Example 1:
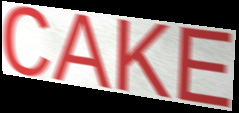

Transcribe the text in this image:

CAKE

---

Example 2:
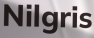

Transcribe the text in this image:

Nilgris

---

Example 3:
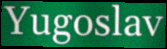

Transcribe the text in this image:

Yugoslav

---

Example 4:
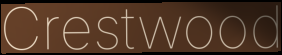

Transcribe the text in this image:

Crestwood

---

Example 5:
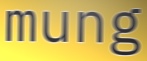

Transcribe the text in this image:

mung